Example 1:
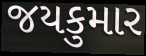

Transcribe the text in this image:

જયકુમાર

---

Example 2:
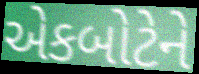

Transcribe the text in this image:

એકબોટેને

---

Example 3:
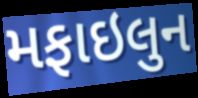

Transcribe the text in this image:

મફાઇલુન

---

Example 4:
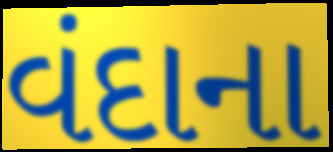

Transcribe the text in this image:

વંદાના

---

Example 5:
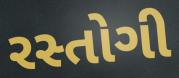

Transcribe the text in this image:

રસ્તોગી